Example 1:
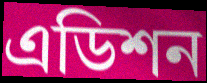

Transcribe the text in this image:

এডিশন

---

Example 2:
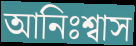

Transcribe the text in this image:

আনিঃশ্বাস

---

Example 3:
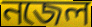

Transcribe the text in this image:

নজেল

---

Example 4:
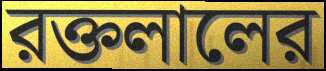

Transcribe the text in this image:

রক্তলালের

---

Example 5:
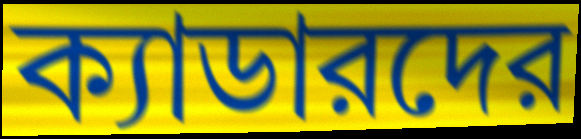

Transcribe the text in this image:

ক্যাডারদের